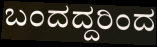
ಬಂದದ್ದರಿಂದ